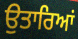
ਉਤਾਰਿਆਂ